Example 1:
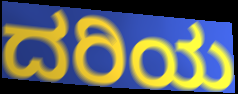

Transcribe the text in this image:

ದರಿಯ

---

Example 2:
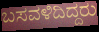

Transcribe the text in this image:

ಬಸವಳಿದಿದ್ದರು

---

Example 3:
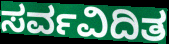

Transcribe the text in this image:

ಸರ್ವವಿದಿತ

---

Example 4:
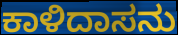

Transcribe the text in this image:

ಕಾಳಿದಾಸನು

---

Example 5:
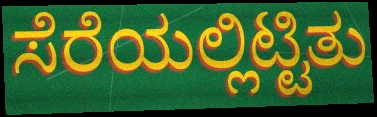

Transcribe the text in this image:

ಸೆರೆಯಲ್ಲಿಟ್ಟಿತು